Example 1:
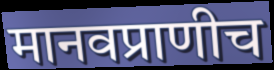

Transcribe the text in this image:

मानवप्राणीच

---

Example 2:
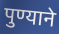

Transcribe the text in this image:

पुण्याने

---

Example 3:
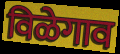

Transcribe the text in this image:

विळेगाव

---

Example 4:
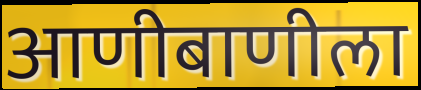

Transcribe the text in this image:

आणीबाणीला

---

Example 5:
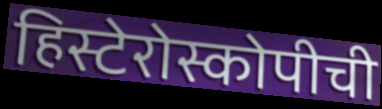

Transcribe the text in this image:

हिस्टेरोस्कोपीची